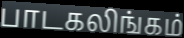
பாடகலிங்கம்